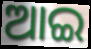
ଆଇ